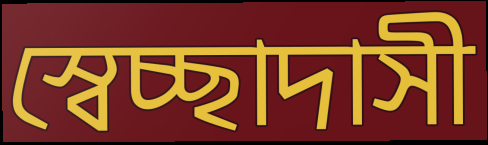
স্বেচ্ছাদাসী